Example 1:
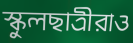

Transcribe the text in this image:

স্কুলছাত্রীরাও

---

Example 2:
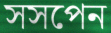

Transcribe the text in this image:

সসপেন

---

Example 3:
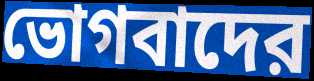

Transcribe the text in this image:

ভোগবাদের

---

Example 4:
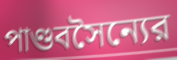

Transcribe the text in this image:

পাণ্ডবসৈন্যের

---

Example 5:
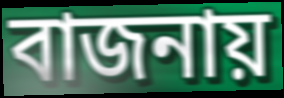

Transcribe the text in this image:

বাজনায়